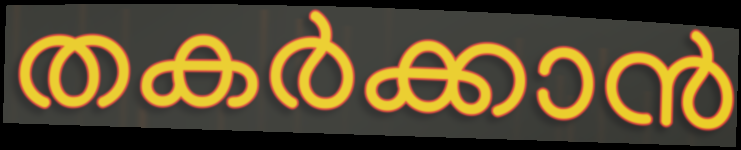
തകർക്കാൻ